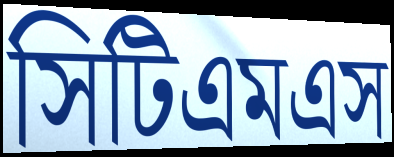
সিটিএমএস